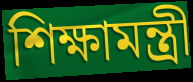
শিক্ষামন্ত্রী